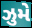
ઝુમે